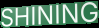
SHINING